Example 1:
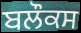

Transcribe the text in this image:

ਬਲੌਕਸ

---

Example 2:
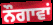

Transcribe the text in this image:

ਨੌਗਾਵਾਂ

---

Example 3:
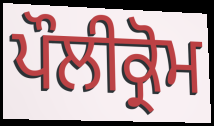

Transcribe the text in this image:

ਪੌਲੀਕ੍ਰੋਮ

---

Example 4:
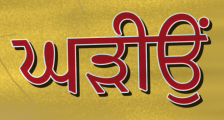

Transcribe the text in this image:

ਘੜੀਉਂ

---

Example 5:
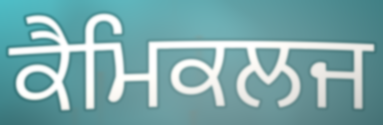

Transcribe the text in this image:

ਕੈਮਿਕਲਜ